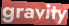
gravity